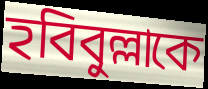
হবিবুল্লাকে